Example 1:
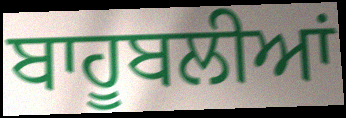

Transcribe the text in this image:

ਬਾਹੂਬਲੀਆਂ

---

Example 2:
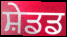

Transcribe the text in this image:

ਸ਼ੇਡਡ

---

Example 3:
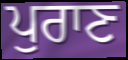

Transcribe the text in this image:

ਪੁਰਾਣ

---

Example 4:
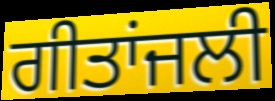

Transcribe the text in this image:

ਗੀਤਾਂਜਲੀ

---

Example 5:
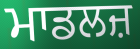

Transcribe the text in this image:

ਮਾਡਲਜ਼